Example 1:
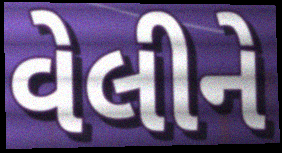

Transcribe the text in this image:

વેલીને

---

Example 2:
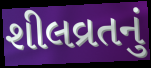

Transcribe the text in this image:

શીલવ્રતનું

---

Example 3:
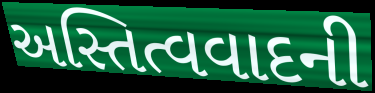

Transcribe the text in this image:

અસ્તિત્વવાદની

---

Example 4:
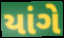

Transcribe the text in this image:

યાંગે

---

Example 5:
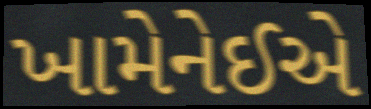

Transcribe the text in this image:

ખામેનેઈએ